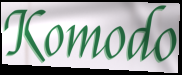
Komodo